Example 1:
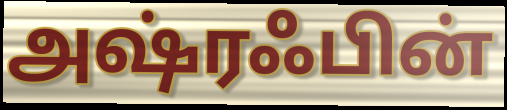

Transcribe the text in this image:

அஷ்ரஃபின்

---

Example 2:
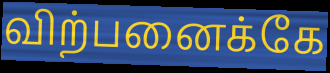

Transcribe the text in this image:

விற்பனைக்கே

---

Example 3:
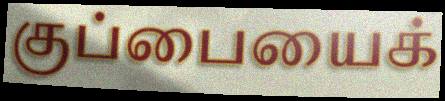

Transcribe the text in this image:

குப்பையைக்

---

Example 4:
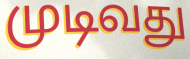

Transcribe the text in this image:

முடிவது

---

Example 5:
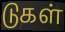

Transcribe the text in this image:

டுகள்